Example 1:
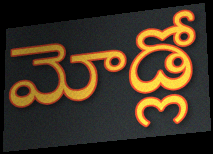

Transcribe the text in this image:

మోడ్లో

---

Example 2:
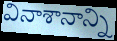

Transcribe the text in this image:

వినాశానాన్ని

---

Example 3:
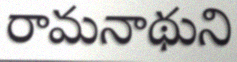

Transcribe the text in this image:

రామనాథుని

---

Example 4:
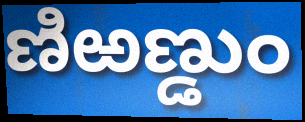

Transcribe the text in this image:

ణిఱణ్డుం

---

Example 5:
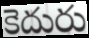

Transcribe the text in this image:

కెదురు